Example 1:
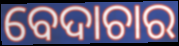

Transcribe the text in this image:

ବେଦାଚାର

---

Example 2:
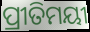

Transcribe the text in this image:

ପ୍ରୀତିମୟୀ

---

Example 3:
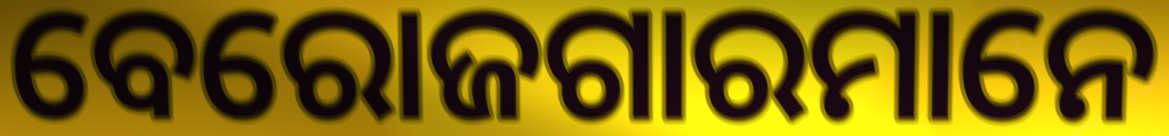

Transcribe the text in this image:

ବେରୋଜଗାରମାନେ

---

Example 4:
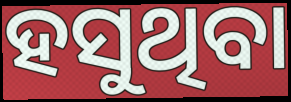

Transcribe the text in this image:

ହସୁଥିବା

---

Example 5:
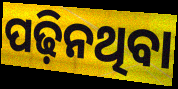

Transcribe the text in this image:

ପଢ଼ିନଥିବା